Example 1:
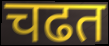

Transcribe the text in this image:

चढत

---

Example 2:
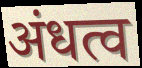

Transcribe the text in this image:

अंधत्व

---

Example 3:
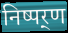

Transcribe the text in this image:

निष्पर्ण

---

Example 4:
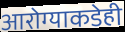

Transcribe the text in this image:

आरोग्याकडेही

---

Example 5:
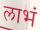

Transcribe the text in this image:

लाभं